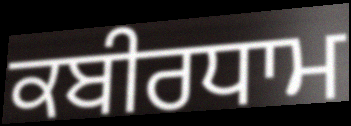
ਕਬੀਰਧਾਮ